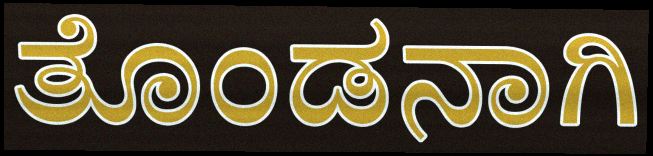
ತೊಂಡನಾಗಿ